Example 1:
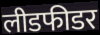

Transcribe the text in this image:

लीडफीडर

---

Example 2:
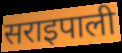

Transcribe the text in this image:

सराइपाली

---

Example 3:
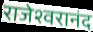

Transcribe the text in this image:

राजेश्वरानंद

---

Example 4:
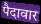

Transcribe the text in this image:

पैदावार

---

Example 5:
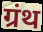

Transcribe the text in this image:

ग्रंथ